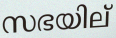
സഭയില്